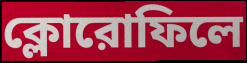
ক্লোরোফিলে